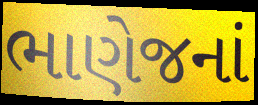
ભાણેજનાં